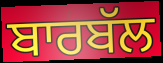
ਬਾਰਬੱਲ